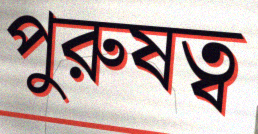
পুরুষত্ব